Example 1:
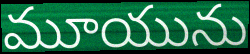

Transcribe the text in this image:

మూయును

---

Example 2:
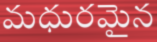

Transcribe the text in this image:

మధురమైన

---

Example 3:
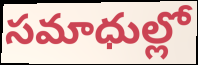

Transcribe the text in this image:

సమాధుల్లో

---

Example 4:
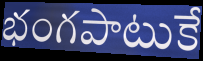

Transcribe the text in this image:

భంగపాటుకే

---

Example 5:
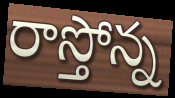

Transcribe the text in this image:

రాస్తోన్న